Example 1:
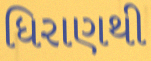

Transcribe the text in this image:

ધિરાણથી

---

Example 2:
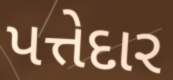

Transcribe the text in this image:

પત્તેદાર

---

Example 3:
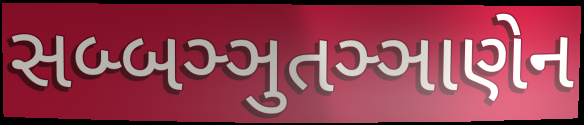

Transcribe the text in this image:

સબ્બઞ્ઞુતઞ્ઞાણેન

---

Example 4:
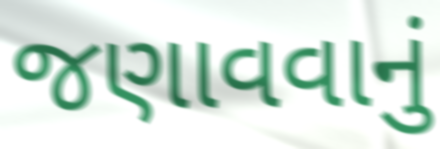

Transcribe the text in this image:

જણાવવાનું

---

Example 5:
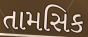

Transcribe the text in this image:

તામસિક